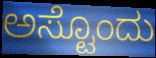
ಅಸ್ಟೊಂದು